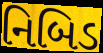
નિબિડ